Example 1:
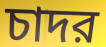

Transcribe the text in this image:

চাদর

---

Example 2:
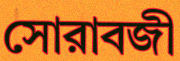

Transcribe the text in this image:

সোরাবজী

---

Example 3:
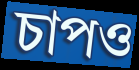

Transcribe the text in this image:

চাপও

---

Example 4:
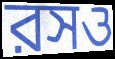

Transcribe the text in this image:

রসও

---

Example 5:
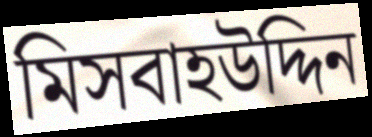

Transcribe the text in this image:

মিসবাহউদ্দিন